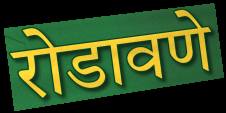
रोडावणे